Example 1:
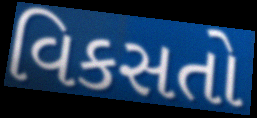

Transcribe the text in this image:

વિકસતો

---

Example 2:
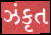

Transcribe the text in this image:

ઝંકૃત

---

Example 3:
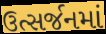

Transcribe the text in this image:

ઉત્સર્જનમાં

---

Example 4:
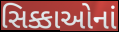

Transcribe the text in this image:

સિક્કાઓનાં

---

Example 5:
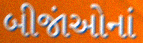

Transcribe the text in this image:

બીજાંઓનાં